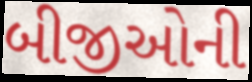
બીજીઓની